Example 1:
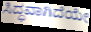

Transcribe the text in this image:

ಸಿದ್ಧವಾಗಿದೆಯೇ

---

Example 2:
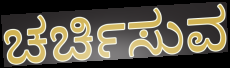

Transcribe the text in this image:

ಚರ್ಚಿಸುವ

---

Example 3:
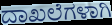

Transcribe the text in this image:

ದಾಖಲೆಗಳಾಗಿ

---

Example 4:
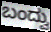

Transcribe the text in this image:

ಬಂದ್ವು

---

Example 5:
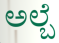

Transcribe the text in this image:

ಅಲ್ಬೆ